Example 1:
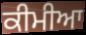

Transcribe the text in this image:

ਕੀਮੀਆ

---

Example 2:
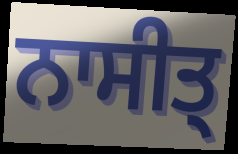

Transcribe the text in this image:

ਨਾਸੀਤ੍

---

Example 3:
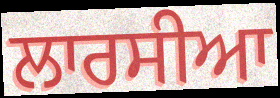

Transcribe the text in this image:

ਲਾਰਸੀਆ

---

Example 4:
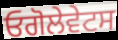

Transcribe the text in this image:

ਓਗੋਲੇਵੇਟਸ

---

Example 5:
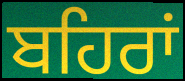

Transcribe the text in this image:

ਬਹਿਰਾਂ